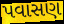
પવાસણ